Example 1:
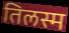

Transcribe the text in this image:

तिलस्म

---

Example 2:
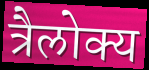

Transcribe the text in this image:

त्रैलोक्य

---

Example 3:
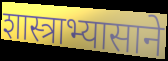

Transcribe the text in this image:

शास्त्राभ्यासाने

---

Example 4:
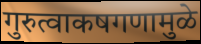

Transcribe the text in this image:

गुरुत्वाकषगणामुळे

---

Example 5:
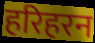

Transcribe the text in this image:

हरिहरन